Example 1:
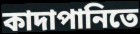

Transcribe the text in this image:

কাদাপানিতে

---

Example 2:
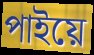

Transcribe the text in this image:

পাইয়ে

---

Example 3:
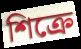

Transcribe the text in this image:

শিক্রে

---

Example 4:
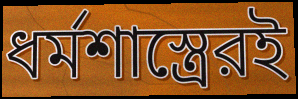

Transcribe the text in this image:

ধর্মশাস্ত্রেরই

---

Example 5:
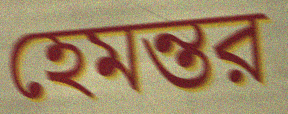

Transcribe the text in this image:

হেমন্তর